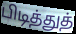
பிடித்துத்